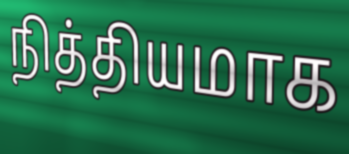
நித்தியமாக